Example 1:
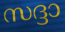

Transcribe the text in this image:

സദ്ദാ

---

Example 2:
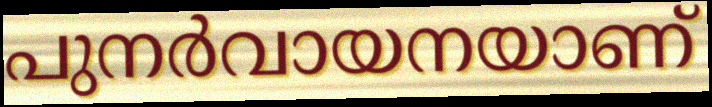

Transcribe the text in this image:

പുനർവായനയാണ്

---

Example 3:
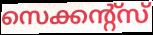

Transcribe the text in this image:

സെക്കന്റ്സ്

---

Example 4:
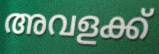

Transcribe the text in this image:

അവളക്ക്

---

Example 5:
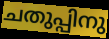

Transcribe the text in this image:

ചതുപ്പിനു